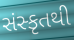
સંસ્કૃતથી